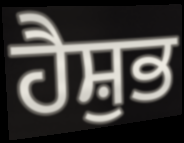
ਹੈਸ਼ੁਭ